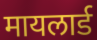
मायलार्ड